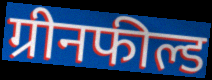
ग्रीनफील्‍ड